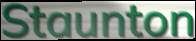
Staunton